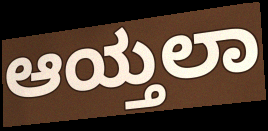
ಆಯ್ತಲಾ